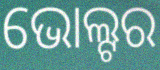
ଭୋଲ୍ଟର